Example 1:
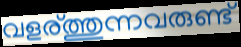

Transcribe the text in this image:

വളര്ത്തുന്നവരുണ്ട്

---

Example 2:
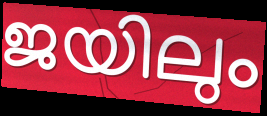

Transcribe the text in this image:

ജയിലും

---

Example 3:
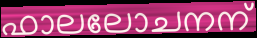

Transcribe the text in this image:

ഫാലലോചനന്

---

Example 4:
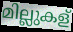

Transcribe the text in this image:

മില്ലുകള്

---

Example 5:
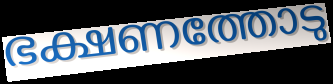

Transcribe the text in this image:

ഭക്ഷണത്തോടു